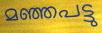
മഞ്ഞപട്ടു